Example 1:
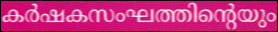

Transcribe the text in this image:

കർഷകസംഘത്തിന്റെയും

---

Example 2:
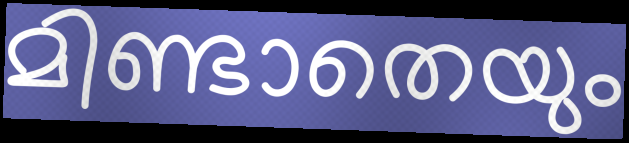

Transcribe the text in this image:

മിണ്ടാതെയും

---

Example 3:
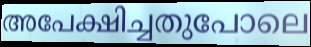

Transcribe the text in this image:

അപേക്ഷിച്ചതുപോലെ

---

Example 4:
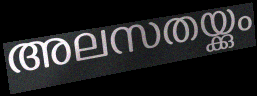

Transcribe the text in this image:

അലസതയ്ക്കും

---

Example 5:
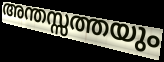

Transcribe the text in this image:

അന്തസ്സത്തയും